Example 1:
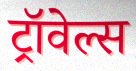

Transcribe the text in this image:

ट्रॉवेल्स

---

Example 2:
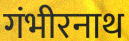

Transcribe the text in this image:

गंभीरनाथ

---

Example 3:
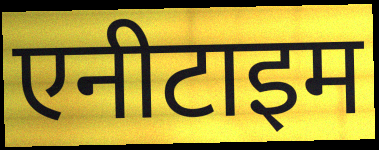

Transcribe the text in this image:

एनीटाइम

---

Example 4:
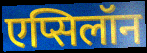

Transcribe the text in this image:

एप्सिलॉन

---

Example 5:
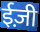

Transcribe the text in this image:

ईज़ी